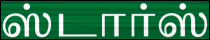
ஸ்டார்ஸ்